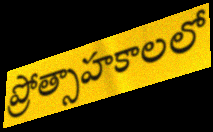
ప్రోత్సాహకాలలో